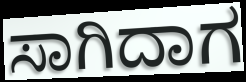
ಸಾಗಿದಾಗ